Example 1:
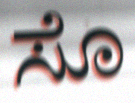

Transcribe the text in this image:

ಸೊ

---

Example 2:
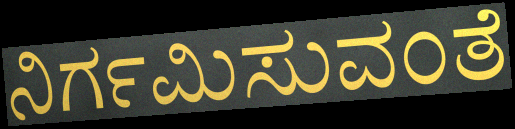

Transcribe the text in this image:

ನಿರ್ಗಮಿಸುವಂತೆ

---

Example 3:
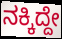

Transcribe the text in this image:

ನಕ್ಕಿದ್ದೇ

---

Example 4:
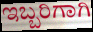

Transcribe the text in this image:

ಇಬ್ಬರಿಗಾಗಿ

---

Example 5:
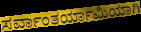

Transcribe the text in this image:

ಸರ್ವಾಂತರ್ಯಾಮಿಯಾಗಿ